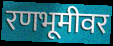
रणभूमीवर